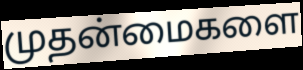
முதன்மைகளை